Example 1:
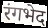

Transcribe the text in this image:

रंगभेद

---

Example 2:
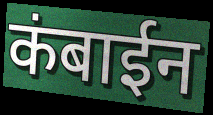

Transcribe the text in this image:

कंबाईन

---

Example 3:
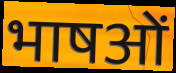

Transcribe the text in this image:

भाषओं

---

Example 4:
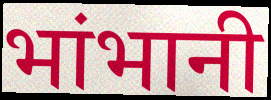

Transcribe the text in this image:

भांभानी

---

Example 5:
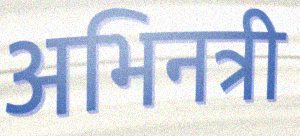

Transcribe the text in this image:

अभिनत्री